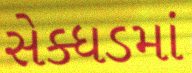
સેક્ધડમાં